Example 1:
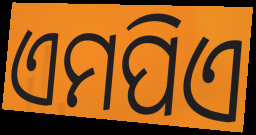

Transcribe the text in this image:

ଏମପିଏ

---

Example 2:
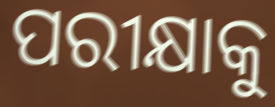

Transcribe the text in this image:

ପରୀକ୍ଷାକୁ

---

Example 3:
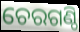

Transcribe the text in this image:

ଚେରଗଣ୍ଠି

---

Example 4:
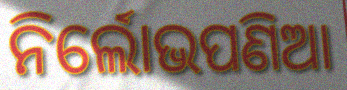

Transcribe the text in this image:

ନିର୍ଲୋଭପଣିଆ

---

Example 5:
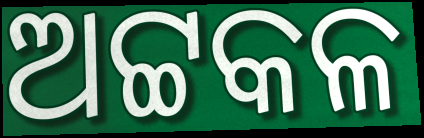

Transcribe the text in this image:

ଅଟ୍ଟକଳ